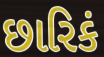
છારિકં